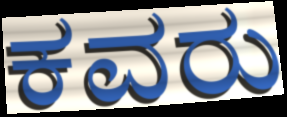
ಕವರು